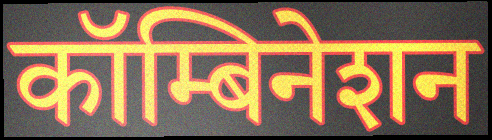
कॉम्बिनेशन